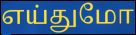
எய்துமோ